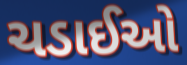
ચડાઈઓ